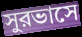
সুরভাসে